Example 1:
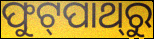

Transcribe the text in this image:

ଫୁଟ୍‌ପାଥ୍‌ରୁ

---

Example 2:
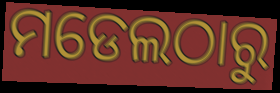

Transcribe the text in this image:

ମଡେଲଠାରୁ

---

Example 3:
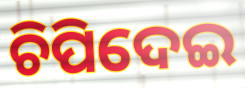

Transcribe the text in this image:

ଚିପିଦେଇ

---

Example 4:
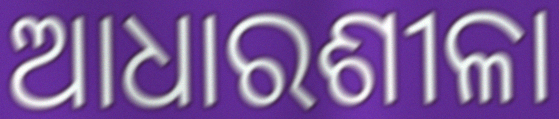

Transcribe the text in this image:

ଆଧାରଶୀଳା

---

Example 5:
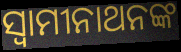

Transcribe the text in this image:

ସ୍ଵାମୀନାଥନଙ୍କ